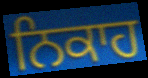
ਨਿਕਾਹ